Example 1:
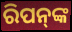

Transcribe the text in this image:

ରିପନ୍‍ଙ୍କ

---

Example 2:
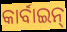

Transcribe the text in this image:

କାର୍ବାଇନ୍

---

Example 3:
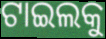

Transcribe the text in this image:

ଟାଇଲକୁ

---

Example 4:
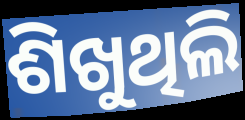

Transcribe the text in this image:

ଶିଖୁଥିଲି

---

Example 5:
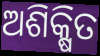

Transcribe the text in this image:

ଅଶିକ୍ଷିତ